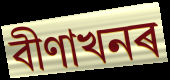
বীণাখনৰ